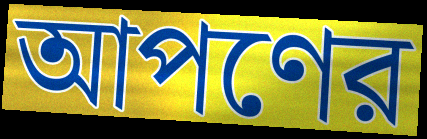
আপণের